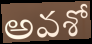
అవశో